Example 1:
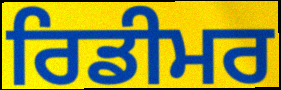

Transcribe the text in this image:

ਰਿਡੀਮਰ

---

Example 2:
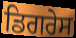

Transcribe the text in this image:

ਡਿਗਰੇਸ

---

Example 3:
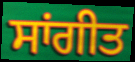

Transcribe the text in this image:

ਸਾਂਗੀਤ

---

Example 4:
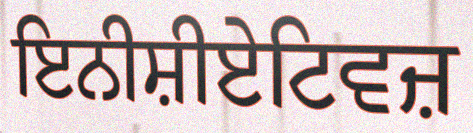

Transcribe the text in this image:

ਇਨੀਸ਼ੀਏਟਿਵਜ਼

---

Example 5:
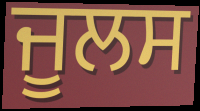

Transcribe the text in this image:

ਜੂਲਸ